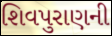
શિવપુરાણની